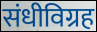
संधीविग्रह